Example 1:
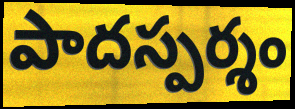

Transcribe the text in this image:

పాదస్పర్శం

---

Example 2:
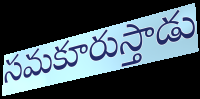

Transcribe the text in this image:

సమకూరుస్తాడు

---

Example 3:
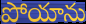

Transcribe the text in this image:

పోయాను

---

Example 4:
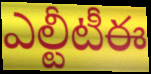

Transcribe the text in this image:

ఎల్టీటీఈ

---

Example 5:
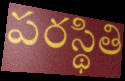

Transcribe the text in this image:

పరస్థితి